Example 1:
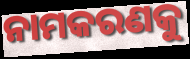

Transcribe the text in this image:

ନାମକରଣକୁ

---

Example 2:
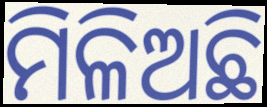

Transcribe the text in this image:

ମିଳିଅଛି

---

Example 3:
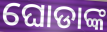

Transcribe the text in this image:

ଘୋଡାଙ୍କ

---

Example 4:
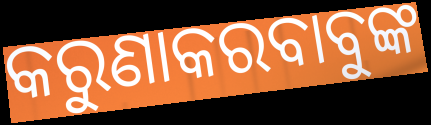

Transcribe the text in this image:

କରୁଣାକରବାବୁଙ୍କ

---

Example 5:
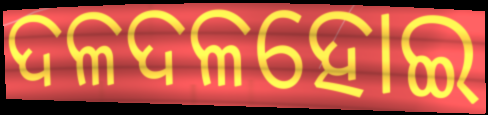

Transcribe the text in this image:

ଦଳଦଳହୋଇ